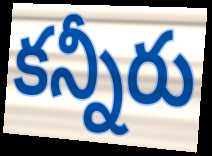
కన్నీరు